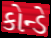
કોન્ડે